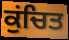
ਕੁਂਚਿਤ